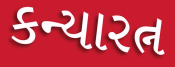
કન્યારત્ન